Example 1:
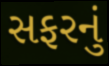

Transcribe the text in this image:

સફરનું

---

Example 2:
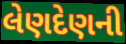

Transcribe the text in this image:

લેણદેણની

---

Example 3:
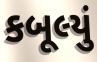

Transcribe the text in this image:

કબૂલ્યું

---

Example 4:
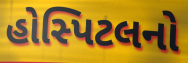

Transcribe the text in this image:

હોસ્પિટલનો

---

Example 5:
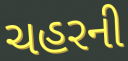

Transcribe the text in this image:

ચહરની